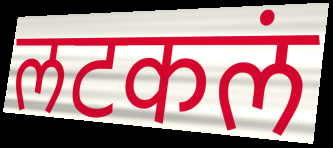
लटकलं